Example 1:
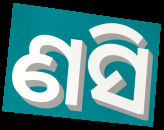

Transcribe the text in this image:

ଣସି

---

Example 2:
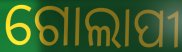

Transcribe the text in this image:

ଗୋଲାପୀ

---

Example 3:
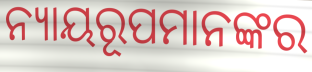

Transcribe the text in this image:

ନ୍ୟାୟରୂପମାନଙ୍କର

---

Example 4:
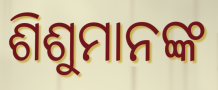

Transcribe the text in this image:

ଶିଶୁମାନଙ୍କ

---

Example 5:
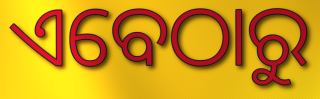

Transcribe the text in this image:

ଏବେଠାରୁ